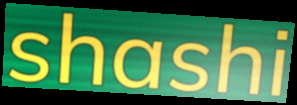
shashi